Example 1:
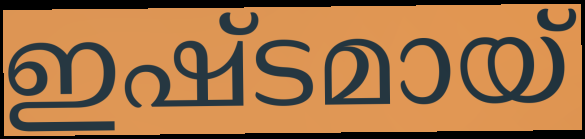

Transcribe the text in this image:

ഇഷ്ടമായ്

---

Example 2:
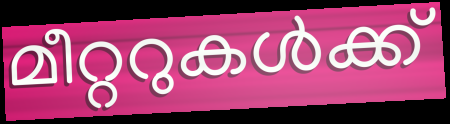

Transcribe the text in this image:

മീറ്ററുകൾക്ക്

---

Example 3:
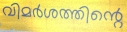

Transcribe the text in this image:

വിമർശത്തിന്റെ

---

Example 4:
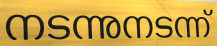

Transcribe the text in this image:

നടന്നുനടന്ന്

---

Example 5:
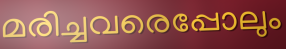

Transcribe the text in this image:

മരിച്ചവരെപ്പോലും